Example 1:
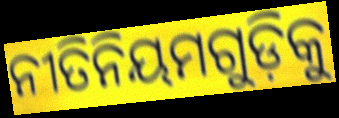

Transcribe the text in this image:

ନୀତିନିୟମଗୁଡ଼ିକୁ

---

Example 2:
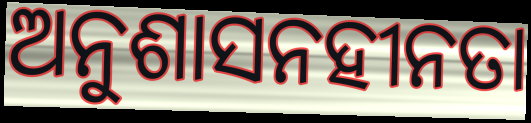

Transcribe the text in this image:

ଅନୁଶାସନହୀନତା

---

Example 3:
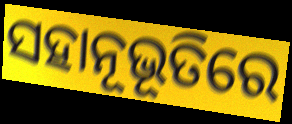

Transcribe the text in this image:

ସହାନୂଭୂତିରେ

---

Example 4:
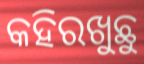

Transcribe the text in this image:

କହିରଖୁଛୁ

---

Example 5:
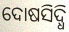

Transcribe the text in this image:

ଦୋଷସିଦ୍ଧି